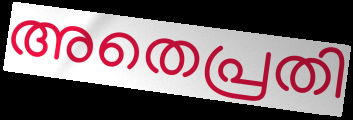
അതെപ്രതി